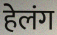
हेलंग